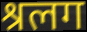
श्रलग